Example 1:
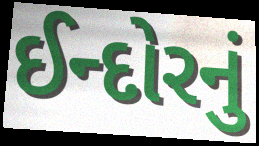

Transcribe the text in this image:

ઈન્દોરનું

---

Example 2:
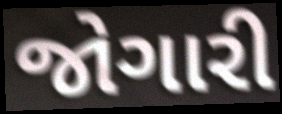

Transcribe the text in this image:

જોગારી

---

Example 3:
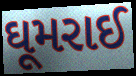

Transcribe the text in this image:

ઘૂમરાઈ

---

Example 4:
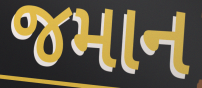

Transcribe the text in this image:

જમાન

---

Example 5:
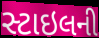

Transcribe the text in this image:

સ્ટાઇલની